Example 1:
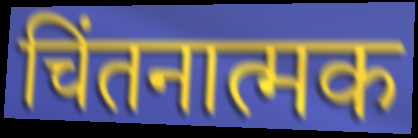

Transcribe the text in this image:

चिंतनात्मक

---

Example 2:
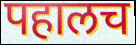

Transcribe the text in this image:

पहालच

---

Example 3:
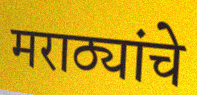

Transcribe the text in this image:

मराठ्यांचे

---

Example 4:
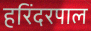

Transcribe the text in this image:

हरिंदरपाल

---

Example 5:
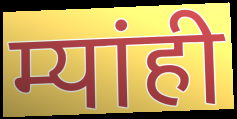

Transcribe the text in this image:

म्यांही